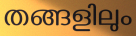
തങ്ങളിലും